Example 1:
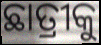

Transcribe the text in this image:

ଛାତ୍ରୀକୁ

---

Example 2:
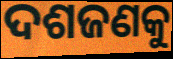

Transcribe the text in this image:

ଦଶଜଣକୁ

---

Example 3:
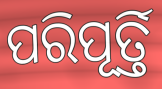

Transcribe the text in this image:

ପରିପୂର୍ତ୍ତି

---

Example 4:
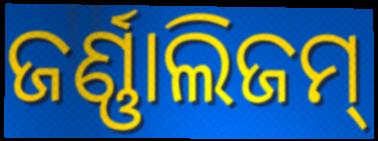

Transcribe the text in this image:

ଜର୍ଣ୍ଣାଲିଜମ୍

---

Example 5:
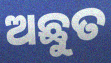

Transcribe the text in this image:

ଅଛୁତ